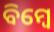
ବିମ୍ବେ